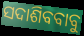
ସଦାଶିବବାବୁ